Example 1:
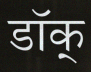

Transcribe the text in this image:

डॉक्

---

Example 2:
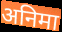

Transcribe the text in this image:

अनिमा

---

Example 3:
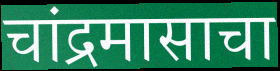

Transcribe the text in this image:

चांद्रमासाचा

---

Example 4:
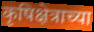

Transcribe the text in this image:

कृषिक्षेत्राच्या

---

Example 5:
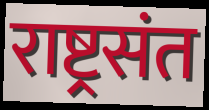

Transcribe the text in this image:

राष्ट्रसंत